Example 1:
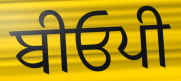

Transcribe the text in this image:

ਬੀਓਪੀ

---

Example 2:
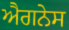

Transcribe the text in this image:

ਐਗਨੇਸ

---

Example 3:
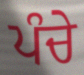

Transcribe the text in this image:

ਪੰਚੇ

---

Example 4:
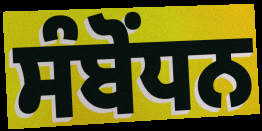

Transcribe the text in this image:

ਸੰਬੋੰਧਨ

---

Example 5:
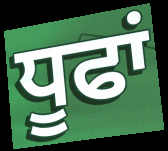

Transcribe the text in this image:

ਧੂਫਾਂ